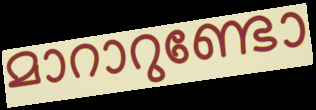
മാറാറുണ്ടോ